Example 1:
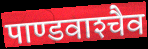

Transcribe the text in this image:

पाण्डवाश्चैव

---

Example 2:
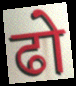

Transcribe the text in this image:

ढो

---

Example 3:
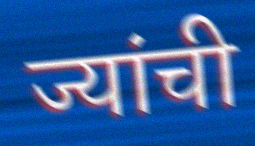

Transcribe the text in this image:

ज्यांची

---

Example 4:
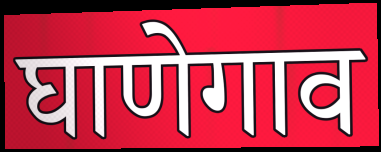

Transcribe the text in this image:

घाणेगाव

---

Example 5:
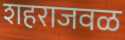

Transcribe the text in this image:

शहराजवळ